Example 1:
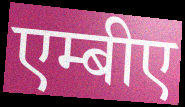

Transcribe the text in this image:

एम्बीए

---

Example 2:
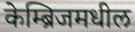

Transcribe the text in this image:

केम्ब्रिजमधील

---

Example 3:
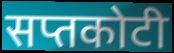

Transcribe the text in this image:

सप्तकोटी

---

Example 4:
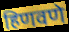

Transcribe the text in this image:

हिणवणे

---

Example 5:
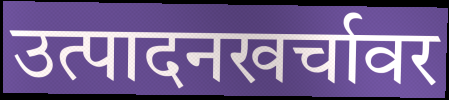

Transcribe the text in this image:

उत्पादनखर्चावर